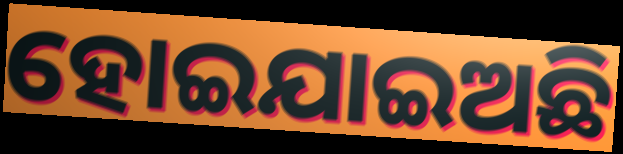
ହୋଇଯାଇଅଛି